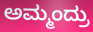
ಅಮ್ಮಂದ್ರು